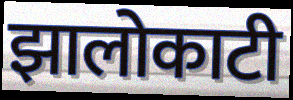
झालोकाटी